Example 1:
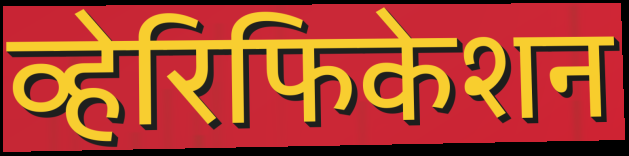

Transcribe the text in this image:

व्हेरिफिकेशन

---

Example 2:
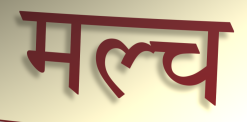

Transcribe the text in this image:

मल्च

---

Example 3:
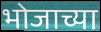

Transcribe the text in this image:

भोजाच्या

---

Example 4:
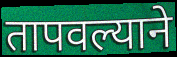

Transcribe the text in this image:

तापवल्याने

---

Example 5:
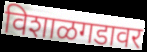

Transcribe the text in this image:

विशाळगडावर